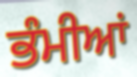
ਭੰਮੀਆਂ